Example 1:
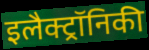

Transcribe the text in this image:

इलैक्ट्रॉनिकी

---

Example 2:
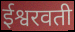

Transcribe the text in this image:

ईश्वरवती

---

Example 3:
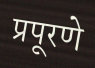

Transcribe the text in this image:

प्रपूरणे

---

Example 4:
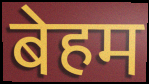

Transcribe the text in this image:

बेहम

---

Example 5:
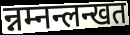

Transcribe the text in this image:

न्नम्नन्लन्खत